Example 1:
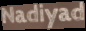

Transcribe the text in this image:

Nadiyad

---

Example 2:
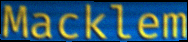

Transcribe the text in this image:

Macklem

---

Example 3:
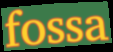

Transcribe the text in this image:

fossa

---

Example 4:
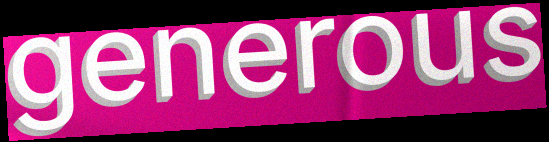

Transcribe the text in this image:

generous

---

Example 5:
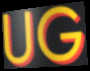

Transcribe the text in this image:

UG